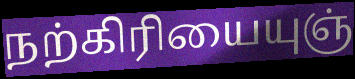
நற்கிரியையுஞ்